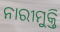
ନାରୀମୁକ୍ତି